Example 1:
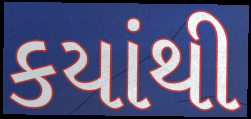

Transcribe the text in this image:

કયાંથી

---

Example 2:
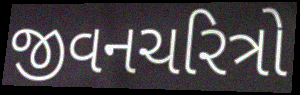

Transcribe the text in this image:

જીવનચરિત્રો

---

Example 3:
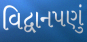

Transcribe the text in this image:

વિદ્વાનપણું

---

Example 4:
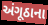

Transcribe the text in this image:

અંગૂઠાના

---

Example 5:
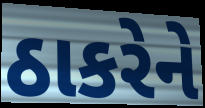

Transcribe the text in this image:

ઠાકરેને